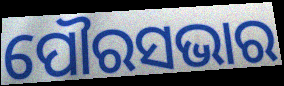
ପୌରସଭାର